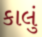
કાલું